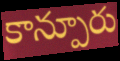
కాన్పూరు